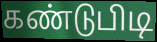
கண்டுபிடி